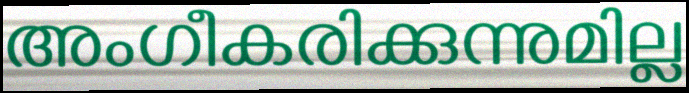
അംഗീകരിക്കുന്നുമില്ല